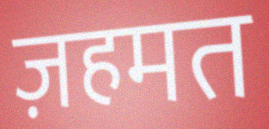
ज़हमत